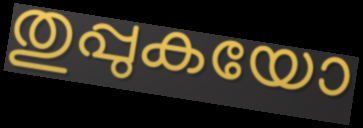
തുപ്പുകയോ